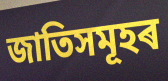
জাতিসমূহৰ